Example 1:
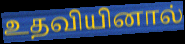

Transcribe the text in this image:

உதவியினால்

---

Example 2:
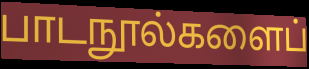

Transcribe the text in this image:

பாடநூல்களைப்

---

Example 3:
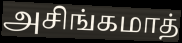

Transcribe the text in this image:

அசிங்கமாத்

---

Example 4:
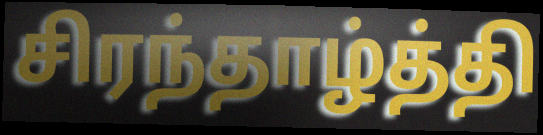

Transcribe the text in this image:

சிரந்தாழ்த்தி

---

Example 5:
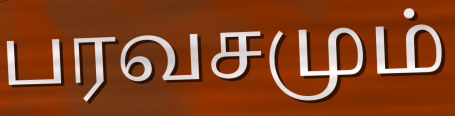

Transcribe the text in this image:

பரவசமும்